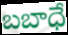
బబాధే